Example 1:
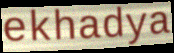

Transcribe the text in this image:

ekhadya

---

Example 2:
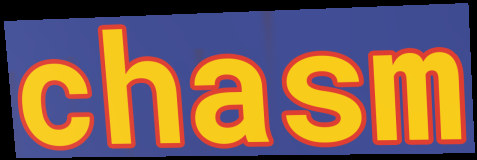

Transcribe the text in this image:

chasm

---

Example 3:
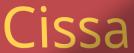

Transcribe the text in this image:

Cissa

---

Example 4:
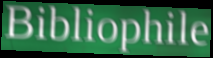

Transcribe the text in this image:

Bibliophile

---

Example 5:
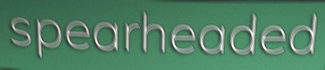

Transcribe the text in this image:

spearheaded